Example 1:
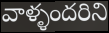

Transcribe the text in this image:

వాళ్ళందరిని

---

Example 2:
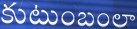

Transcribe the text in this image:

కుటుంబంలా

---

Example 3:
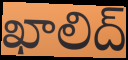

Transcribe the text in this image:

ఖాలిద్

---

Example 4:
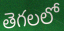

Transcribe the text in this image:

తెగలలో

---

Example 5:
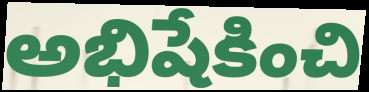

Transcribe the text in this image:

అభిషేకించి